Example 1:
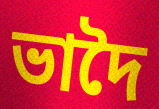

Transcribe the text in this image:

ভাদৈ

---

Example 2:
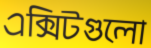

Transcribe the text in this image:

এক্সিটগুলো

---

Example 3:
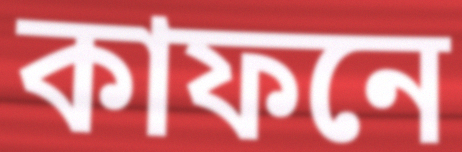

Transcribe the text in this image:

কাফনে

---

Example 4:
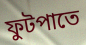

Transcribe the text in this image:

ফুটপাতে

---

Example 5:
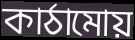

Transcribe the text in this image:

কাঠামোয়